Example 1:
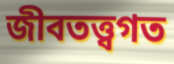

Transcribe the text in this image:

জীবতত্ত্বগত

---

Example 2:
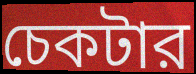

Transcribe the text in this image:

চেকটার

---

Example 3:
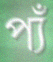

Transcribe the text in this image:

প্যঁ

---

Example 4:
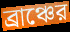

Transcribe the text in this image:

ব্রাঞ্চের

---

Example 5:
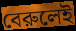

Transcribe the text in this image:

বেরুলেই